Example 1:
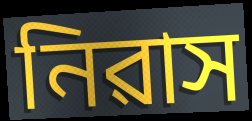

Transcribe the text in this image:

নিৱাস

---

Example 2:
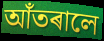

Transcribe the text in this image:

আঁতৰালে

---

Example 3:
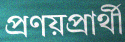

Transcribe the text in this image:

প্ৰণয়প্ৰাৰ্থী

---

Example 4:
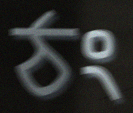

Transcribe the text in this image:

ঠং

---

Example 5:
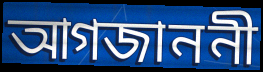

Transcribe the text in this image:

আগজাননী